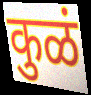
कुळं